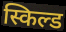
स्किल्ड